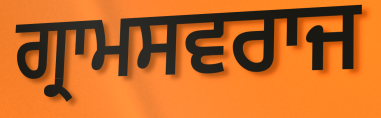
ਗ੍ਰਾਮਸਵਰਾਜ